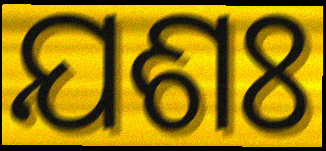
ଯଶଃ